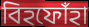
বিহফোঁহা